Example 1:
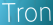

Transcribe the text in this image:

Tron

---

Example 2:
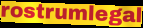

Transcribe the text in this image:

rostrumlegal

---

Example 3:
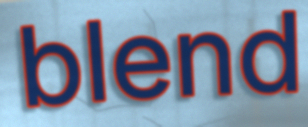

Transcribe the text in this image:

blend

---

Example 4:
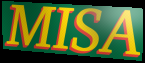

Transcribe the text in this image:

MISA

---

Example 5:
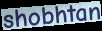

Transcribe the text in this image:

shobhtan